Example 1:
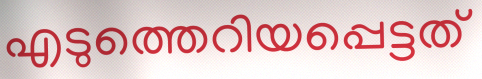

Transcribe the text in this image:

എടുത്തെറിയപ്പെട്ടത്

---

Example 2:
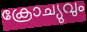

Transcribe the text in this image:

ക്രോച്യുവും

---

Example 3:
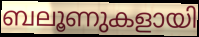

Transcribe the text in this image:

ബലൂണുകളായി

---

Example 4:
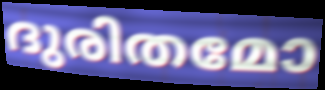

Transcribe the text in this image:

ദുരിതമോ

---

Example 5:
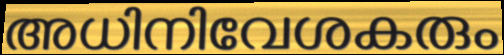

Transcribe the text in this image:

അധിനിവേശകരും